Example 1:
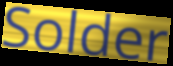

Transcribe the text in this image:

Solder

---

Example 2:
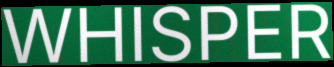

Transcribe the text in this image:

WHISPER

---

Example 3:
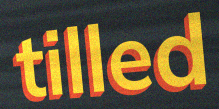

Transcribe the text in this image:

tilled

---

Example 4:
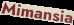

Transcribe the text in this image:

Mimansia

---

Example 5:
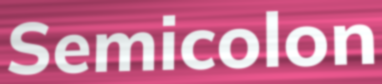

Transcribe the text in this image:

Semicolon